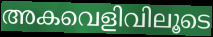
അകവെളിവിലൂടെ